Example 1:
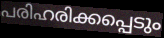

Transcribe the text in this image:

പരിഹരിക്കപ്പെടും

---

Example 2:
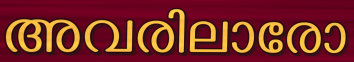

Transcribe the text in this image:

അവരിലാരോ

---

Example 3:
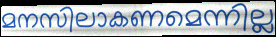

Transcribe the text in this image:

മനസിലാകണമെന്നില്ല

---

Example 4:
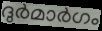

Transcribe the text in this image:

ദുർമാർഗം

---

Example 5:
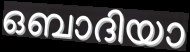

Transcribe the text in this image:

ഒബാദിയാ